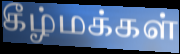
கீழ்மக்கள்